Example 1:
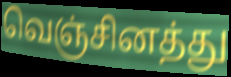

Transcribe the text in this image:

வெஞ்சினத்து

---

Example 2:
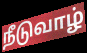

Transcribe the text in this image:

நீடுவாழ்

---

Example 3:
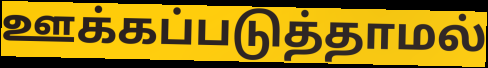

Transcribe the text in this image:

ஊக்கப்படுத்தாமல்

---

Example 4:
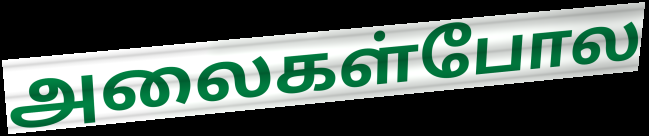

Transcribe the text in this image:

அலைகள்போல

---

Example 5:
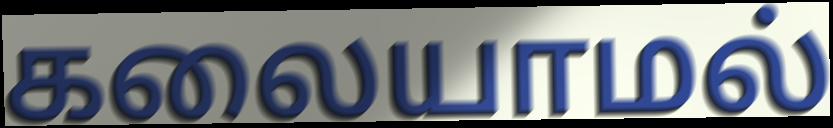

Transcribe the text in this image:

கலையாமல்